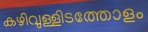
കഴിവുള്ളിടത്തോളം